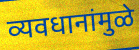
व्यवधानांमुळे